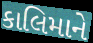
કાલિમાને